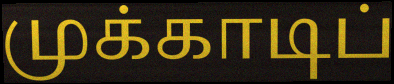
முக்காடிப்